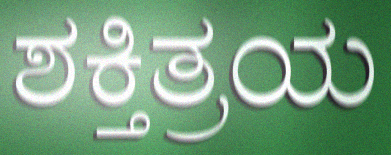
ಶಕ್ತಿತ್ರಯ